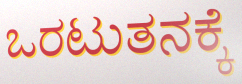
ಒರಟುತನಕ್ಕೆ